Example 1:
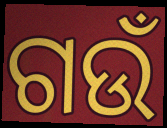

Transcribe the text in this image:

ଗଉଁ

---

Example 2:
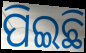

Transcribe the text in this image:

ପିଇଛି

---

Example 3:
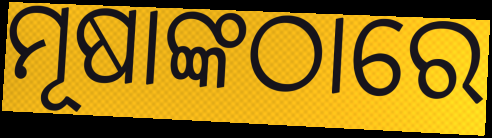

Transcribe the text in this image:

ମୂଷାଙ୍କଠାରେ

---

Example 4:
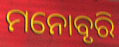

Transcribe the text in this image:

ମନୋବୃରି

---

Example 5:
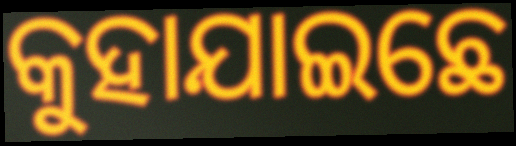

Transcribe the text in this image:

କୁହାଯାଇଛେ